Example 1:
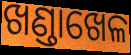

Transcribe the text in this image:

ଖଣ୍ଡାଖେଳ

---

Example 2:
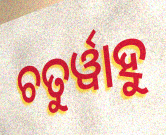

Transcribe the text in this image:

ଚତୁର୍ୱାହୁ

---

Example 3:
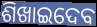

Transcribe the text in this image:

ଶିଖାଇଦେବ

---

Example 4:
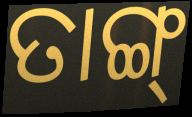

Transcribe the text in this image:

ତାଙ୍ଗ୍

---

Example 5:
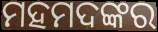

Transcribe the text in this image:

ମହମଦଙ୍କର